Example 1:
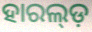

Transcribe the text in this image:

ହାରଲ୍ଡ଼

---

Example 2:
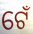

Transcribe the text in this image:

ଟେଁ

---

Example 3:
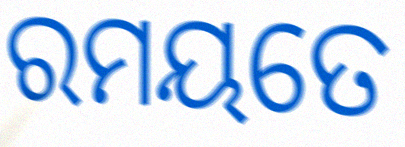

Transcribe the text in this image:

ରମୟତେ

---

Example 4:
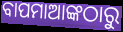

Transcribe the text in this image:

ବାପମାଆଙ୍କଠାରୁ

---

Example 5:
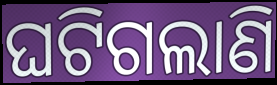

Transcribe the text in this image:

ଘଟିଗଲାଣି